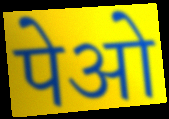
पेओ